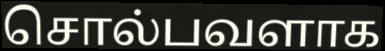
சொல்பவளாக